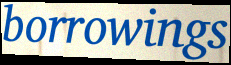
borrowings